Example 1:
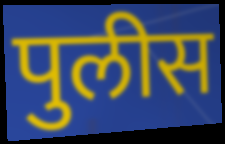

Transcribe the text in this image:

पुलीस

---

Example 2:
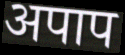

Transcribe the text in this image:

अपाप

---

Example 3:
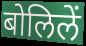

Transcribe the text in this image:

बोलिलें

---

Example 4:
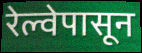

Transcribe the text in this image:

रेल्वेपासून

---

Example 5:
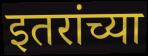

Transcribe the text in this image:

इतरांच्या